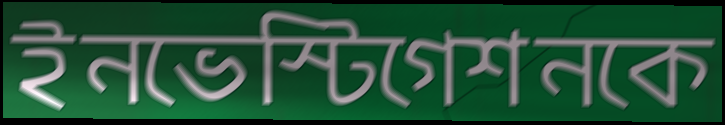
ইনভেস্টিগেশনকে